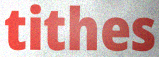
tithes